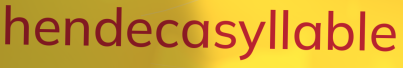
hendecasyllable